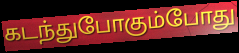
கடந்துபோகும்போது